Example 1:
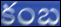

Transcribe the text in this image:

కంబ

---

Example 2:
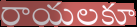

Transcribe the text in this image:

రాయలకూ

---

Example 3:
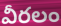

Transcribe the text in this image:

వీరలం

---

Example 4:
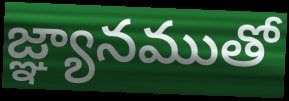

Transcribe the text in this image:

జ్ఞ్యానముతో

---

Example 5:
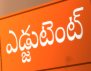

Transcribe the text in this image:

ఎడ్జుటెంట్